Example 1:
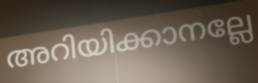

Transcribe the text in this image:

അറിയിക്കാനല്ലേ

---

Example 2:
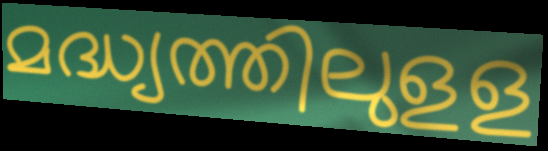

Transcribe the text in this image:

മദ്ധ്യത്തിലുളള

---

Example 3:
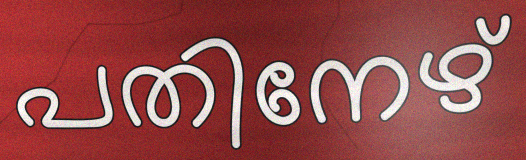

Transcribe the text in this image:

പതിനേഴ്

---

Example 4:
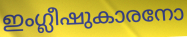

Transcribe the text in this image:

ഇംഗ്ലീഷുകാരനോ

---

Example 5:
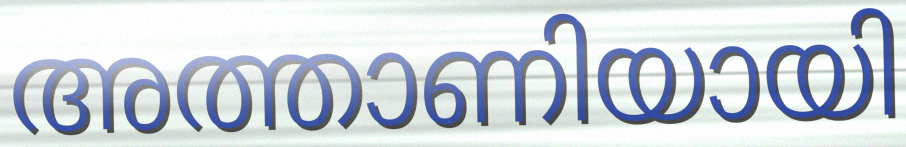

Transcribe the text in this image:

അത്താണിയായി